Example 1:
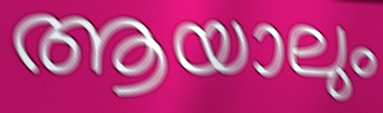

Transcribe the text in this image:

ആയാലും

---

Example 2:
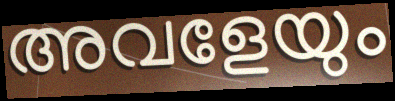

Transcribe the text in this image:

അവളേയും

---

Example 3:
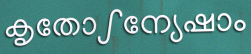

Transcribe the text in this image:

കൃതോഽന്യേഷാം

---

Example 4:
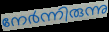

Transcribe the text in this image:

നേർന്നിരുന്നു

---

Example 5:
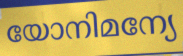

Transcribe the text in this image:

യോനിമന്യേ